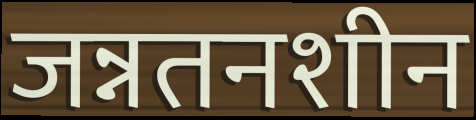
जन्नतनशीन